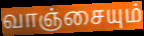
வாஞ்சையும்